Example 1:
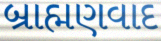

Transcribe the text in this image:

બ્રાહ્મણવાદ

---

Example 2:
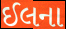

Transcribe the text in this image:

ઈલના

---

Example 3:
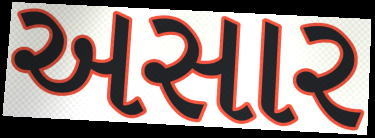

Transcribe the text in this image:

અસાર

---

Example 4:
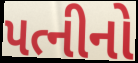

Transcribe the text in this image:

પત્નીનો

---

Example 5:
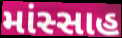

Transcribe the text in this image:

માંસ્સાહ